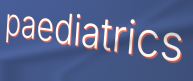
paediatrics